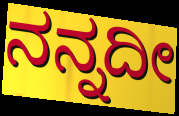
ನನ್ನದೀ